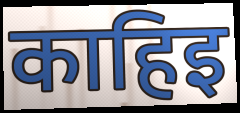
काहिइ